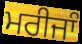
ਮਰੀਜਾੰ